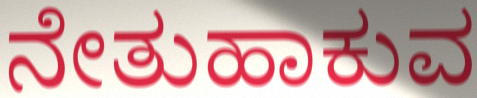
ನೇತುಹಾಕುವ